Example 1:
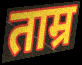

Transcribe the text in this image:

ताम्र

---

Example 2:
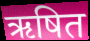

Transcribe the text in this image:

ऋषित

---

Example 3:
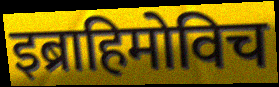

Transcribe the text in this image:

इब्राहिमोविच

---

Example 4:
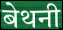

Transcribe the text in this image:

बेथनी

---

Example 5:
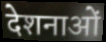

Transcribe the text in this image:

देशनाओं